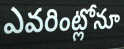
ఎవరింట్లోనూ